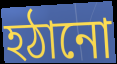
হঠানো